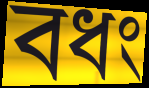
বধং